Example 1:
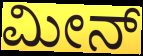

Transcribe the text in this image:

ಮೀನ್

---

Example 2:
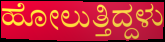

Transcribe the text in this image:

ಹೋಲುತ್ತಿದ್ದಳು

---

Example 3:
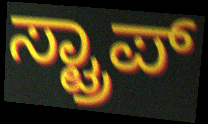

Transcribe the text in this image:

ಸ್ಟ್ರಾಪ್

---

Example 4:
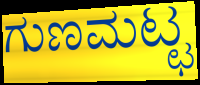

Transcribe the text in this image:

ಗುಣಮಟ್ಟ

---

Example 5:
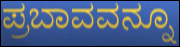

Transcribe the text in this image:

ಪ್ರಬಾವವನ್ನೂ